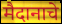
मैदानाचे